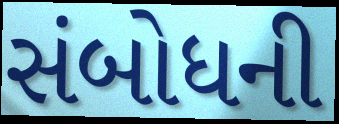
સંબોધની